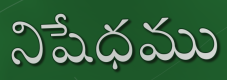
నిషేధము